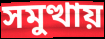
সমুত্থায়